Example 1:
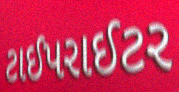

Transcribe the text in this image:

ટાઈપરાઈટર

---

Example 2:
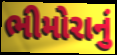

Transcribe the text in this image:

ભીમોરાનું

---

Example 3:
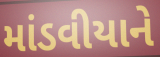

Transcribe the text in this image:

માંડવીયાને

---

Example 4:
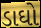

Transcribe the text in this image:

ડાઘો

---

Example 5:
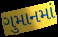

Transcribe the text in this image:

ગુમાનમાં